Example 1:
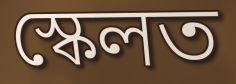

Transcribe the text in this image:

স্কেলত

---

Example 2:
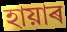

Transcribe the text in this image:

হায়াৰ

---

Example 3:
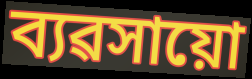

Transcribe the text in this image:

ব্যৱসায়ো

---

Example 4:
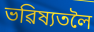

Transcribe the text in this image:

ভৱিষ্যতলৈ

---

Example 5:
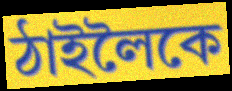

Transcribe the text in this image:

ঠাইলৈকে